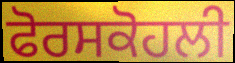
ਫੋਰਸਕੋਹਲੀ